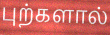
புற்களால்